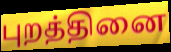
புறத்தினை